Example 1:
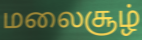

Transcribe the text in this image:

மலைசூழ்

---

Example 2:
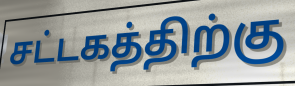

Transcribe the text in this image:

சட்டகத்திற்கு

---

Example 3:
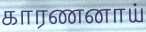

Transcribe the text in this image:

காரணனாய்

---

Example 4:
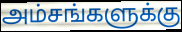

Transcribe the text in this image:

அம்சங்களுக்கு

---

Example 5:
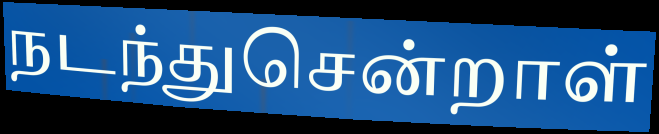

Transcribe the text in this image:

நடந்துசென்றாள்